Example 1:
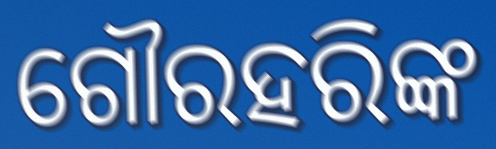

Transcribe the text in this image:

ଗୌରହରିଙ୍କ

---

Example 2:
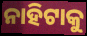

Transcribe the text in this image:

ନାହିଟାକୁ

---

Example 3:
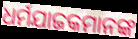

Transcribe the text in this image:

ଧର୍ମଯାଜକମାନଙ୍କ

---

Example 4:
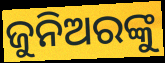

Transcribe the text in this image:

ଜୁନିଅରଙ୍କୁ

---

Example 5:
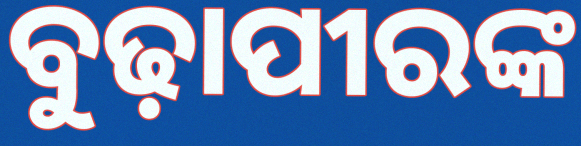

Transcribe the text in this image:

ବୁଢ଼ାପୀରଙ୍କ